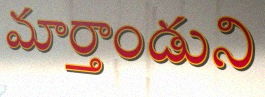
మార్తాండుని